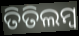
ତିତିଲମ୍ଵ